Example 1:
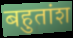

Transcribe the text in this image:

बहुतांश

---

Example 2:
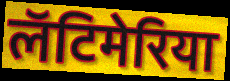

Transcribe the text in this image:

लॅटिमेरिया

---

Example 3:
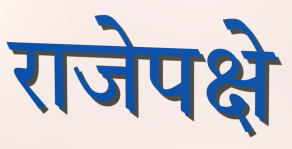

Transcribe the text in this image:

राजेपक्षे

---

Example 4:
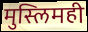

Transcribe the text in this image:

मुस्लिमही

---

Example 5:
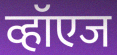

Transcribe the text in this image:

व्हॉएज